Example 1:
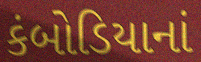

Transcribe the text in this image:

કંબોડિયાનાં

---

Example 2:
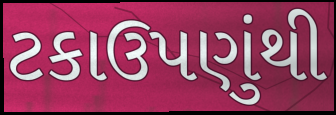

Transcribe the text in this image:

ટકાઉપણુંથી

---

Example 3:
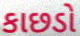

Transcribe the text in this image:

કાછડો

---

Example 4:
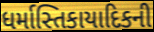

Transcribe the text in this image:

ધર્માસ્તિકાયાદિકની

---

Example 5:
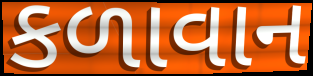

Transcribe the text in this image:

કળાવાન